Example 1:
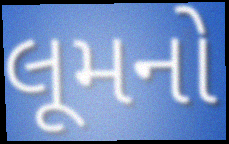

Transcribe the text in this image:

લૂમનો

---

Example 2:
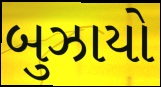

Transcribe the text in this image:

બુઝાયો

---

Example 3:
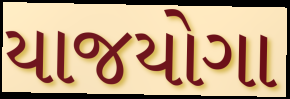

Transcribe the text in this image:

યાજયોગા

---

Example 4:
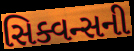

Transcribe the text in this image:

સિક્વન્સની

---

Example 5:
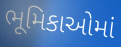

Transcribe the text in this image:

ભૂમિકાઓમાં